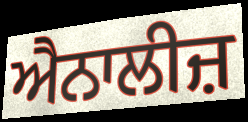
ਐਨਾਲੀਜ਼